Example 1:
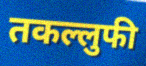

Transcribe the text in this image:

तकल्लुफी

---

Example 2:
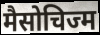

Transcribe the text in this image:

मैसोचिज्म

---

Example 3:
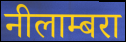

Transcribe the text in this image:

नीलाम्बरा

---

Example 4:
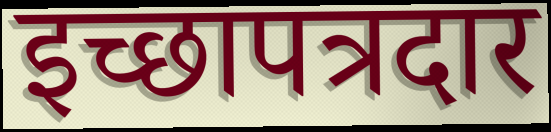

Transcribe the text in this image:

इच्छापत्रदार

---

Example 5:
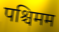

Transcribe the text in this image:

पश्चिमम